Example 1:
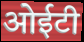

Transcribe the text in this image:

ओईटी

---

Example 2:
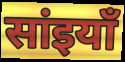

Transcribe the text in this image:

सांइयाँ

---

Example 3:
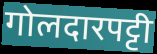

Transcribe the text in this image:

गोलदारपट्टी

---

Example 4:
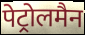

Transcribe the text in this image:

पेट्रोलमैन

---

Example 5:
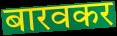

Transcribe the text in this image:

बारवकर